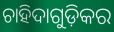
ଚାହିଦାଗୁଡ଼ିକର